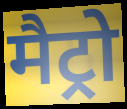
मैट्रो